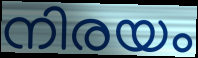
നിരയം